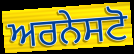
ਅਰਨੇਸਟੋ